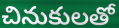
చినుకులతో